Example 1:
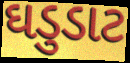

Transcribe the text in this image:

ઘડુડાટ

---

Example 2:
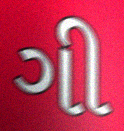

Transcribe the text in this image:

ગી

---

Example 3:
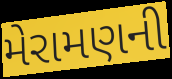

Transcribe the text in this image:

મેરામણની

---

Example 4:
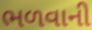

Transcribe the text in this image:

ભળવાની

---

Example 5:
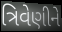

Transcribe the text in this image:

ત્રિવેણીને